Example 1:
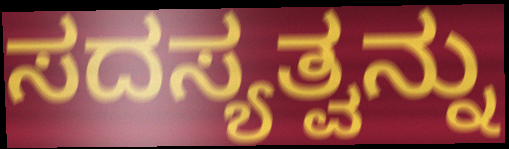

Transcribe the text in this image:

ಸದಸ್ಯತ್ವನ್ನು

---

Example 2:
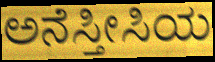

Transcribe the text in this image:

ಅನೆಸ್ತೀಸಿಯ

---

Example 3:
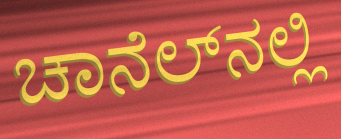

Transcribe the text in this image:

ಚಾನೆಲ್‌ನಲ್ಲಿ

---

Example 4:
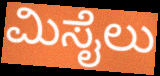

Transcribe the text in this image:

ಮಿಸೈಲು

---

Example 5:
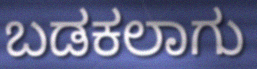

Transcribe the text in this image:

ಬಡಕಲಾಗು